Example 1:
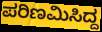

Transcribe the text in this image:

ಪರಿಣಮಿಸಿದ್ದ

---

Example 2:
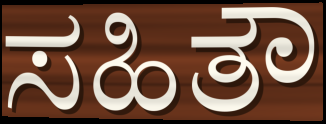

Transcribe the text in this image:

ಸಹಿತೌ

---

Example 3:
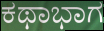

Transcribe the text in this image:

ಕಥಾಭಾಗ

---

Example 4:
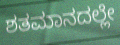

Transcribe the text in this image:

ಶತಮಾನದಲ್ಲೇ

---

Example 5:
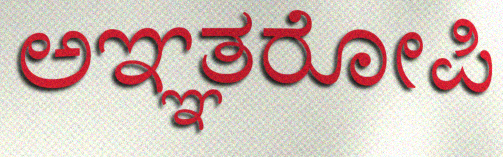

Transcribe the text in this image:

ಅಞ್ಞತರೋಪಿ